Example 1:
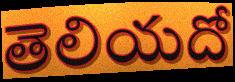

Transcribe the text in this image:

తెలియదో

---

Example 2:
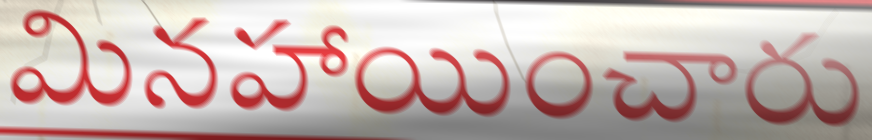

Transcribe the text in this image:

మినహాయించారు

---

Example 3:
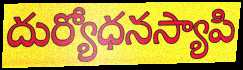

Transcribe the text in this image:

దుర్యోధనస్యాపి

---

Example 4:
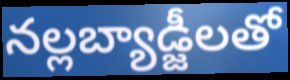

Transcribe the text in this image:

నల్లబ్యాడ్జీలతో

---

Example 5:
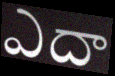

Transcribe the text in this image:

ఎదా